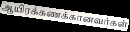
ஆயிரக்கணக்கானவர்கள்